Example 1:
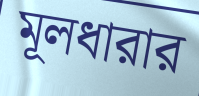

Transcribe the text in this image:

মূলধারার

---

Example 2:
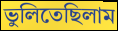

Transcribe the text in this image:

ভুলিতেছিলাম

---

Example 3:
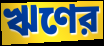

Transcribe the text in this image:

ঋণের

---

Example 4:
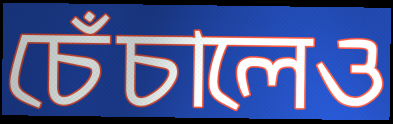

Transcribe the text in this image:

চেঁচালেও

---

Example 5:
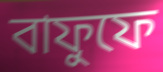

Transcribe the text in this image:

বাফুফে